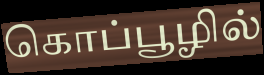
கொப்பூழில்